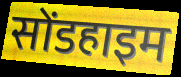
सोंडहाइम